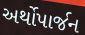
અર્થોપાર્જન